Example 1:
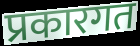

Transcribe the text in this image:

प्रकारगत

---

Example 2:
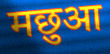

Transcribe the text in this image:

मछुआ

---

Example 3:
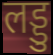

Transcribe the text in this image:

लड्डु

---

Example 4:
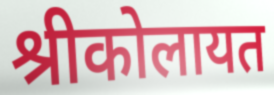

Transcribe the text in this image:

श्रीकोलायत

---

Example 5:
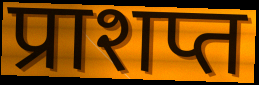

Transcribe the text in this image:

प्राशप्त